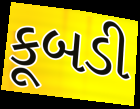
કૂબડી